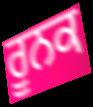
ਰੂਨਕ